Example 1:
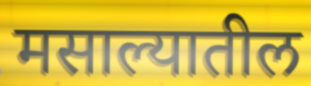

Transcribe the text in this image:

मसाल्यातील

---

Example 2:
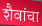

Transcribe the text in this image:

शैवांचा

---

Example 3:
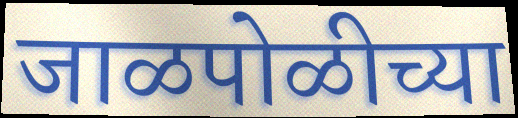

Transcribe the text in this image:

जाळपोळीच्या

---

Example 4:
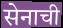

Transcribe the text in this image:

सेनाची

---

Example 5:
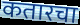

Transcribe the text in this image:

कतारचा